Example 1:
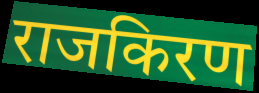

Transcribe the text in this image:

राजकिरण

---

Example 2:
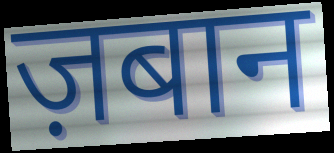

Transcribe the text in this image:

ज़बान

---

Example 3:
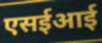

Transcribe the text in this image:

एसईआई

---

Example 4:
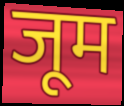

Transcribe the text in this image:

जूम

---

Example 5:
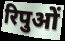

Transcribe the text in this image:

रिपुओं